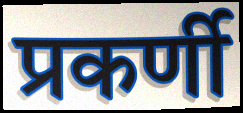
प्रकर्णी